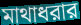
মাথাধরার